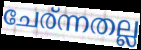
ചേര്ന്നതല്ല